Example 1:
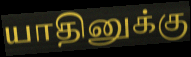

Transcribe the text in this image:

யாதினுக்கு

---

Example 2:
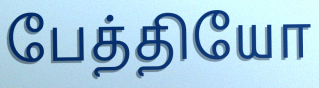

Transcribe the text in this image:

பேத்தியோ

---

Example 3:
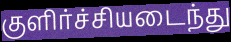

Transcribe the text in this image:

குளிர்ச்சியடைந்து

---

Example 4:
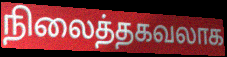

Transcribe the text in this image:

நிலைத்தகவலாக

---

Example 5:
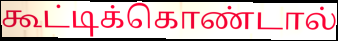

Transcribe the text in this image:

கூட்டிக்கொண்டால்